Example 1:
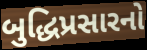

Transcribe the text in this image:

બુદ્ધિપ્રસારનો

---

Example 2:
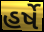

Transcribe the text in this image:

હર્ષે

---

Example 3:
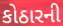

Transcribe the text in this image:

કોઠારની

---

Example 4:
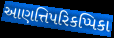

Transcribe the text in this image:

આણત્તિપરિકપ્પિકા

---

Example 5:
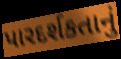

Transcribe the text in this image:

પારદર્શકતાનું